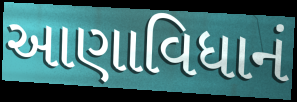
આણાવિધાનં